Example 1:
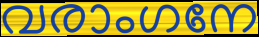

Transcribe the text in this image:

വരാംഗനേ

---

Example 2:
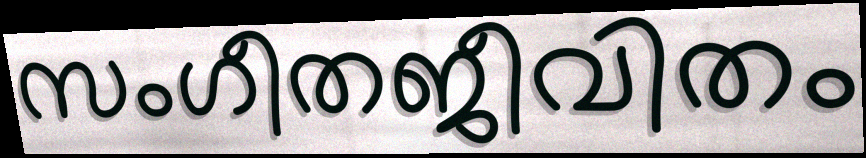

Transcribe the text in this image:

സംഗീതജീവിതം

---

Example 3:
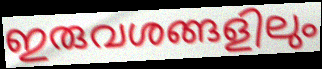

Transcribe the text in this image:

ഇരുവശങ്ങളിലും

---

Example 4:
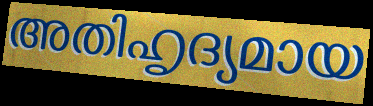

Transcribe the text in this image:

അതിഹൃദ്യമായ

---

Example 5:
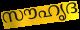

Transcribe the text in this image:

സൗഹൃദ